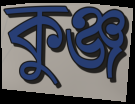
কুঞ্জ